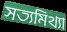
সত্যমিথ্যা